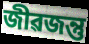
জীৱজন্তু